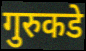
गुरुकडे